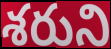
శరుని